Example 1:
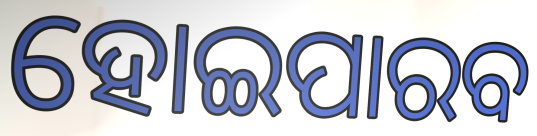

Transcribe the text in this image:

ହୋଇପାରବ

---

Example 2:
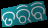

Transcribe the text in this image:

ତରିବି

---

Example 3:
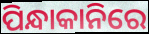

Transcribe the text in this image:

ପିନ୍ଧାକାନିରେ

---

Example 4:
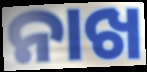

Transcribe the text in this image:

ନାଖ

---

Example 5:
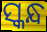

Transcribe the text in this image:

ସ୍କନ୍ଧ